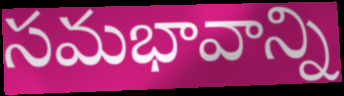
సమభావాన్ని